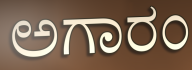
ಅಗಾರಂ